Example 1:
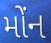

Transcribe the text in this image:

મોંન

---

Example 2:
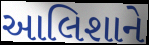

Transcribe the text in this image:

આલિશાને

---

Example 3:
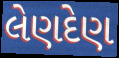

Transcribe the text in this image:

લેણદેણ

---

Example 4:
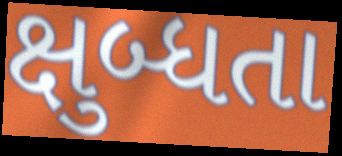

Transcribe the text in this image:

ક્ષુબ્ધતા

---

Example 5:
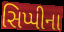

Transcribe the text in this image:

સિપ્પીના